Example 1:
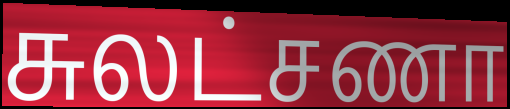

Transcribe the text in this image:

சுலட்சணா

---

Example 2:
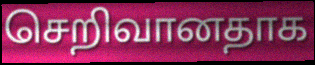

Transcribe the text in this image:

செறிவானதாக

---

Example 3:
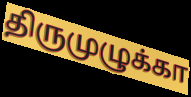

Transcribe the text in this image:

திருமுழுக்கா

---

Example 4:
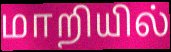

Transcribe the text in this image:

மாறியில்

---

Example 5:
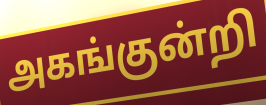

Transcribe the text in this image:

அகங்குன்றி